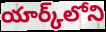
యార్క్‌లోని